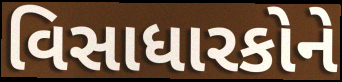
વિસાધારકોને